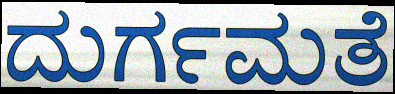
ದುರ್ಗಮತೆ